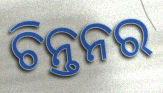
ଚିନ୍ତନର